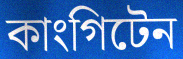
কাংগিটেন